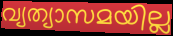
വ്യത്യാസമയില്ല